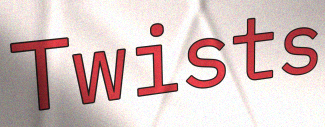
Twists